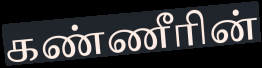
கண்ணீரின்